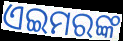
ଏଇମରଙ୍କ